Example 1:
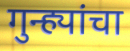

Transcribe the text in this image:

गुन्ह्यांचा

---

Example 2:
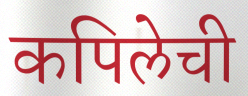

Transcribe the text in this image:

कपिलेची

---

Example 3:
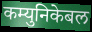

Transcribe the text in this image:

कम्युनिकेबल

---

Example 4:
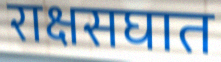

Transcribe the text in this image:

राक्षसघात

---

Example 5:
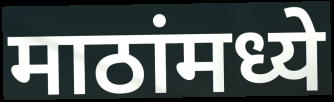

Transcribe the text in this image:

माठांमध्ये